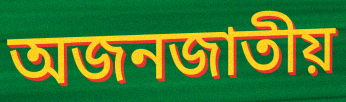
অজনজাতীয়